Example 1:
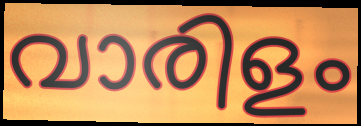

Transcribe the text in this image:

വാരിളം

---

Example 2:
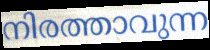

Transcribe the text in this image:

നിരത്താവുന്ന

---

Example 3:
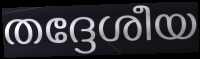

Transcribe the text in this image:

തദ്ദേശീയ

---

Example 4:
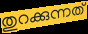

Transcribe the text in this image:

തുറക്കുന്നത്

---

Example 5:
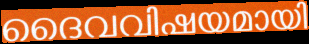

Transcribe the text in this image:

ദൈവവിഷയമായി